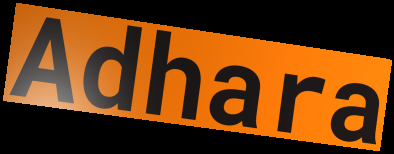
Adhara